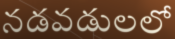
నడవడులలో